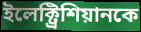
ইলেক্ট্রিশিয়ানকে